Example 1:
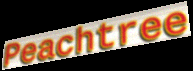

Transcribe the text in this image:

Peachtree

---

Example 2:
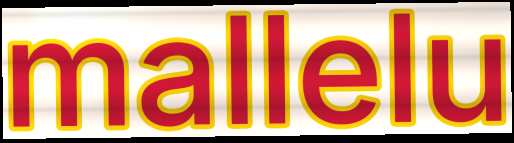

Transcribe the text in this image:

mallelu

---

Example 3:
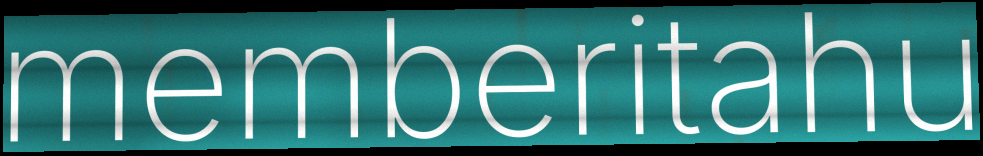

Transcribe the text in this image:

memberitahu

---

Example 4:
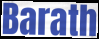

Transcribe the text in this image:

Barath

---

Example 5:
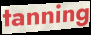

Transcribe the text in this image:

tanning